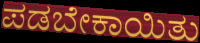
ಪಡಬೇಕಾಯಿತು